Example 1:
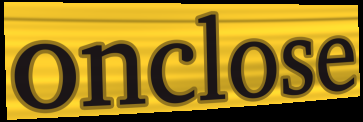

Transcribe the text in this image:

onclose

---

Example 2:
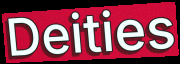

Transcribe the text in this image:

Deities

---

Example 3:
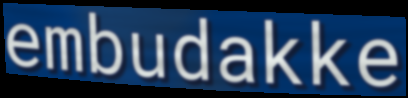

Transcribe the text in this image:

embudakke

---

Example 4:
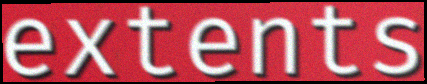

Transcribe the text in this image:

extents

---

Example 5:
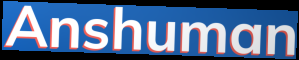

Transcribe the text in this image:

Anshuman